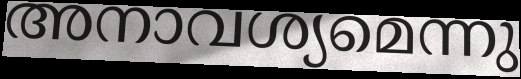
അനാവശ്യമെന്നു